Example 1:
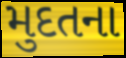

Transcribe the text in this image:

મુદતના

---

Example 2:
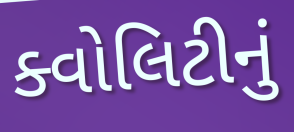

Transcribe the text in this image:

ક્વોલિટીનું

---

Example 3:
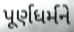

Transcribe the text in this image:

પૂર્ણધર્મને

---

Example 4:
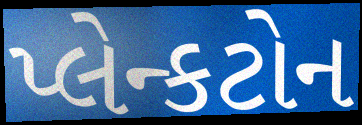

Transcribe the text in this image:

પ્લેન્કટોન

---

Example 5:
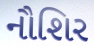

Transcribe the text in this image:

નૌશિર